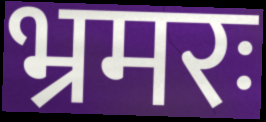
भ्रमरः